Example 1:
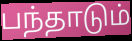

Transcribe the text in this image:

பந்தாடும்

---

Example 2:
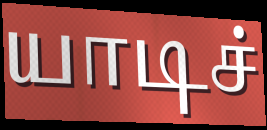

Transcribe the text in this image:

யாடிச்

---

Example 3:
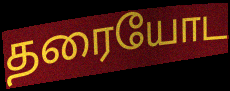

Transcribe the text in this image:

தரையோட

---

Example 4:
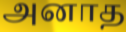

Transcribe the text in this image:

அனாத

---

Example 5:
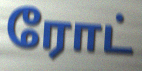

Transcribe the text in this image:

ரோட்